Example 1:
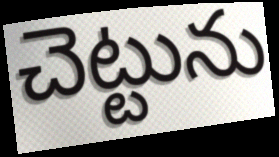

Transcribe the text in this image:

చెట్టును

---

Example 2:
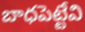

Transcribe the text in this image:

బాధపెట్టేవి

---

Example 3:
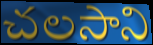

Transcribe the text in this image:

చలసాని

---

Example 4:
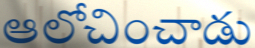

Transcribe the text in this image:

ఆలోచించాడు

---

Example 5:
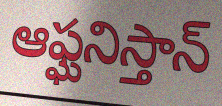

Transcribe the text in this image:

ఆఫ్ఘనిస్తాన్